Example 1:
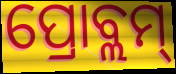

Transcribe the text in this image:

ପ୍ରୋବ୍ଲମ୍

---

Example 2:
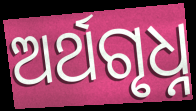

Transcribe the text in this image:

ଅର୍ଥଗୃଧ୍ନ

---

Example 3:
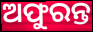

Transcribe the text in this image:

ଅଫୁରନ୍ତ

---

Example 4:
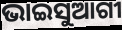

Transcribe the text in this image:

ଭାଇସୁଆଗୀ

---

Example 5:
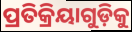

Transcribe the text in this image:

ପ୍ରତିକ୍ରିୟାଗୁଡ଼ିକୁ